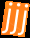
jjj